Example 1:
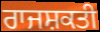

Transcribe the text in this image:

ਰਾਜਸ਼ਕਤੀ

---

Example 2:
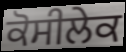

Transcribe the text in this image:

ਕੋਸੀਲੇਕ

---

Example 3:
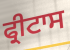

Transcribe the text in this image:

ਫ੍ਰੀਟਾਸ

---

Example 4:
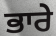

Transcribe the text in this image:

ਭਾਰੇ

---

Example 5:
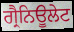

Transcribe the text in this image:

ਗ੍ਰੈਨਿਊਲੇਟ